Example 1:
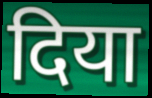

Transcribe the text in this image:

दिया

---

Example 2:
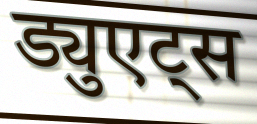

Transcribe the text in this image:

ड्युएट्स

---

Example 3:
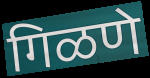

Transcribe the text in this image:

गिळणे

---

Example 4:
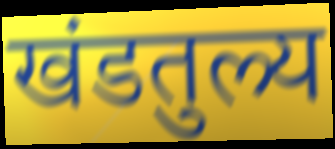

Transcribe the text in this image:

खंडतुल्य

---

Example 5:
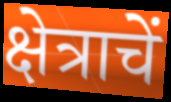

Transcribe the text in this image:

क्षेत्राचें